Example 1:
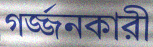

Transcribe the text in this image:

গর্জ্জনকারী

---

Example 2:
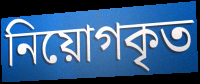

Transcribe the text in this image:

নিয়োগকৃত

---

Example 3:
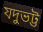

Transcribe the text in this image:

যদুভট্ট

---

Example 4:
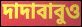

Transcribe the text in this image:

দাদাবাবুও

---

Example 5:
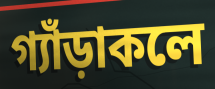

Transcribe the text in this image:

গ্যাঁড়াকলে